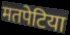
मतपेटिया